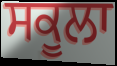
ਸਕੂਲਾ